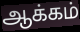
ஆக்கம்